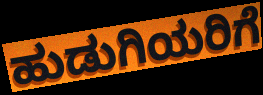
ಹುಡುಗಿಯರಿಗೆ